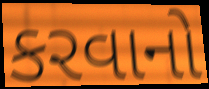
કરવાનો